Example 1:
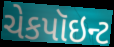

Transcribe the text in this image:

ચેકપૉઇન્ટ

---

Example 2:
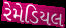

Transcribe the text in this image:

રેમેડિયલ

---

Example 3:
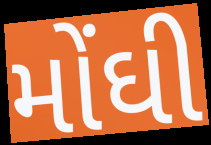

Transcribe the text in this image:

મોંઘી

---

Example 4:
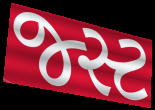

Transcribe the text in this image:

જ્સ્ટ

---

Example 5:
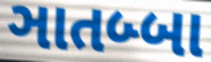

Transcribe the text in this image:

ઞાતબ્બા